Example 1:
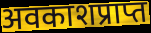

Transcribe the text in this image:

अवकाशप्राप्त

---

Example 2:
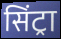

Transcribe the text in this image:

सिंट्रा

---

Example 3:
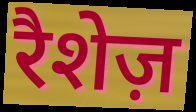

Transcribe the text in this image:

रैशेज़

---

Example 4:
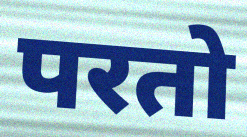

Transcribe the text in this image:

परतो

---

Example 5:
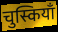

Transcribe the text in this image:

चुस्कियाँ